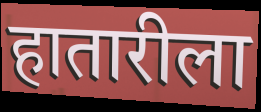
हातारीला